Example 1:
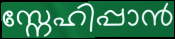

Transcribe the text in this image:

സ്നേഹിപ്പാൻ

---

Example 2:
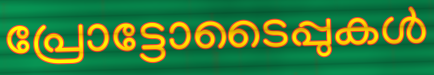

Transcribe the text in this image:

പ്രോട്ടോടൈപ്പുകൾ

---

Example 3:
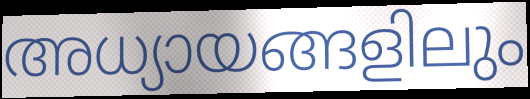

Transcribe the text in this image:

അധ്യായങ്ങളിലും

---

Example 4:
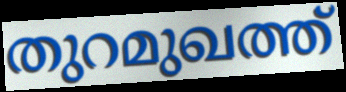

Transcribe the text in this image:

തുറമുഖത്ത്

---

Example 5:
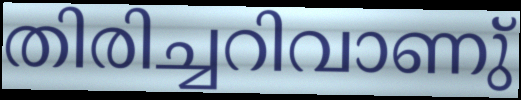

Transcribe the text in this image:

തിരിച്ചറിവാണു്